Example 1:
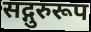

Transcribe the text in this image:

सद्गुरुरूप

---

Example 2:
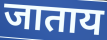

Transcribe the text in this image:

जाताय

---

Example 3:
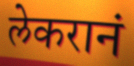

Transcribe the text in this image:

लेकरानं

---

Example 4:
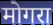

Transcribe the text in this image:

मोगरा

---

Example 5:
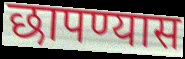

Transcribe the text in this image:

छापण्यास